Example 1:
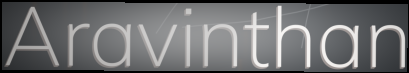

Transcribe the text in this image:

Aravinthan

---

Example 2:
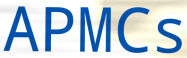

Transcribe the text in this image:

APMCs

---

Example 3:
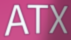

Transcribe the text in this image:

ATX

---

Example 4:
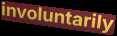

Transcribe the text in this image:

involuntarily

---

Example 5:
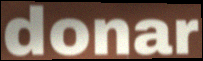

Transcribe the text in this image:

donar